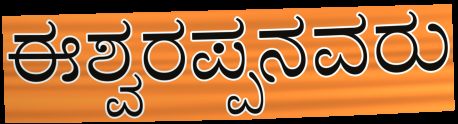
ಈಶ್ವರಪ್ಪನವರು